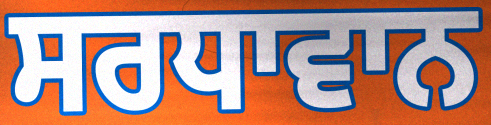
ਸਰਧਾਵਾਨ